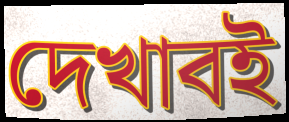
দেখাবই